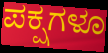
ಪಕ್ಷಗಳೂ